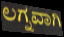
ಲಗ್ನವಾಗಿ